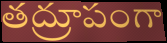
తద్రూపంగా